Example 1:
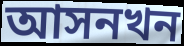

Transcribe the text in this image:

আসনখন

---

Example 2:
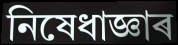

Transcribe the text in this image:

নিষেধাজ্ঞাৰ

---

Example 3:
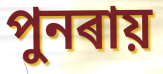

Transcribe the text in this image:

পুনৰায়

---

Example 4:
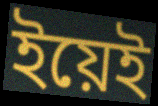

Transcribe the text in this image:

ইয়েই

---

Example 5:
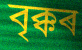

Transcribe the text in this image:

বৃক্কৰ